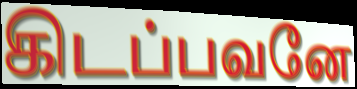
கிடப்பவனே